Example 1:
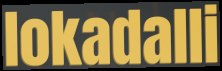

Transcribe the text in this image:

lokadalli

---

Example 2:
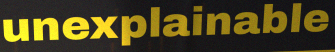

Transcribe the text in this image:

unexplainable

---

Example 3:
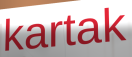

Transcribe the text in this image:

kartak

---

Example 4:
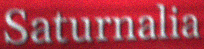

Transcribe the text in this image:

Saturnalia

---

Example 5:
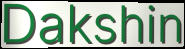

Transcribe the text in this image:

Dakshin